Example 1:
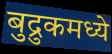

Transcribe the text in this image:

बुद्रुकमध्ये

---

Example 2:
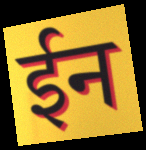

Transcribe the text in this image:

ईन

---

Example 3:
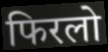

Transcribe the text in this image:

फिरलो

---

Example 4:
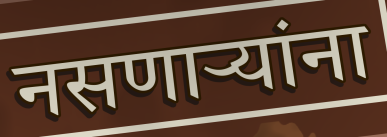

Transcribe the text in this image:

नसणाऱ्यांना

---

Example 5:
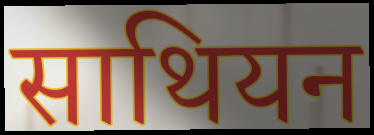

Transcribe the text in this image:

साथियन